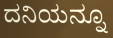
ದನಿಯನ್ನೂ